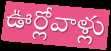
ఊర్లోవాళ్లు